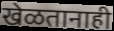
खेळतानाही